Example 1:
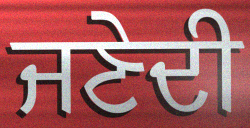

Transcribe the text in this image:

ਜਣੇਦੀ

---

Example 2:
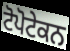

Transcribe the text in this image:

ਟੋਪੋਟੇਕਨ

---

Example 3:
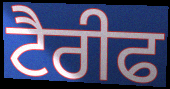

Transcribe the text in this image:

ਟੈਰੀਫ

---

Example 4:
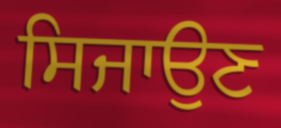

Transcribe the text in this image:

ਸਿਜਾਉਣ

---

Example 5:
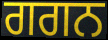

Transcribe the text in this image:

ਗਗਨ